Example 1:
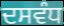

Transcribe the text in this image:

ਦਸਵੰਧ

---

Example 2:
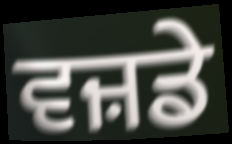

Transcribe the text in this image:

ਵਜ਼ਡੇ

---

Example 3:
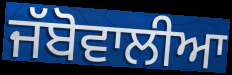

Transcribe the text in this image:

ਜੱਬੋਵਾਲੀਆ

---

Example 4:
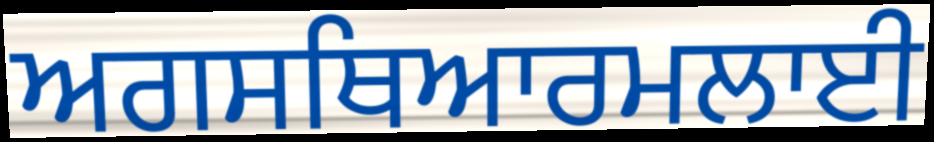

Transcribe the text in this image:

ਅਗਸਥਿਆਰਮਲਾਈ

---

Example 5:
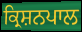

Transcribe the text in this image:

ਕ੍ਰਿਸ਼ਨਪਾਲ